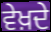
ਵੇਖ਼ਦੇ